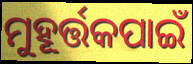
ମୁହୂର୍ତ୍ତକପାଇଁ